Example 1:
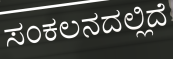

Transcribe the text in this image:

ಸಂಕಲನದಲ್ಲಿದೆ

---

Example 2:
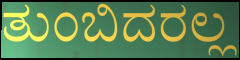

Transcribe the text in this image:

ತುಂಬಿದರಲ್ಲ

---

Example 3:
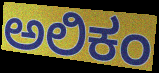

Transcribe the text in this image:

ಅಲಿಕಂ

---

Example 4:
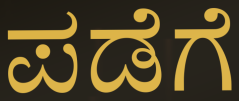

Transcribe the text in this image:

ಪಡೆಗೆ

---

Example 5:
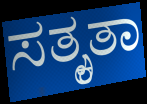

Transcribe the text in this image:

ಸತ್ಕೃತಾ